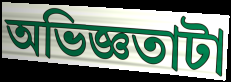
অভিজ্ঞতাটা